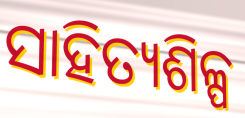
ସାହିତ୍ୟଶିଳ୍ପ